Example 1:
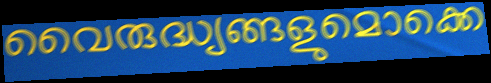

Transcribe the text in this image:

വൈരുദ്ധ്യങ്ങളുമൊക്കെ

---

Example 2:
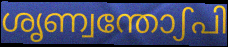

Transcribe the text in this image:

ശൃണ്വന്തോഽപി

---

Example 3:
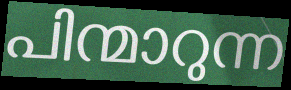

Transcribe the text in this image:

പിന്മാറുന്ന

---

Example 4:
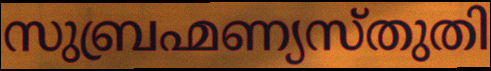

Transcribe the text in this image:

സുബ്രഹ്മണ്യസ്തുതി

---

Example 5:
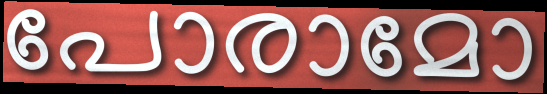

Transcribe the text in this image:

പോരാമോ